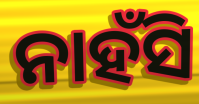
ନାହଁସି